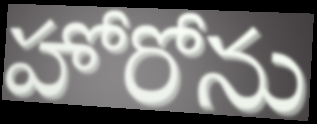
హోరోను